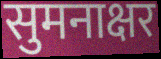
सुमनाक्षर